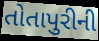
તોતાપુરીની